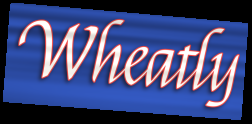
Wheatly